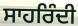
ਸਾਹਰਿੰਦੀ